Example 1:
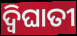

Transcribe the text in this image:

ଦ୍ବିଘାତୀ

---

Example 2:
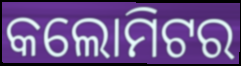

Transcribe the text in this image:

କଲୋମିଟର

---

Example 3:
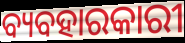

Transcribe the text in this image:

ବ୍ୟବହାରକାରୀ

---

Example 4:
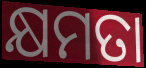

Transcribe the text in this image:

କ୍ଷମତା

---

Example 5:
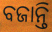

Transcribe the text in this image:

ବଜାନ୍ତି